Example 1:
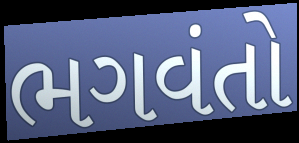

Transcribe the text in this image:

ભગવંતો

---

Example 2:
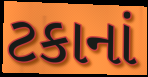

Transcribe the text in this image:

ટકાનાં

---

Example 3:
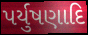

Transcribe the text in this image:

પર્યુષણાદિ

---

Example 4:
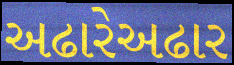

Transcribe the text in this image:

અઢારેઅઢાર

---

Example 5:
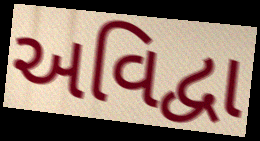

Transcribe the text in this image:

અવિદ્વા